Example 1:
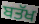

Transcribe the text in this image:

ਬਤੱਖ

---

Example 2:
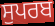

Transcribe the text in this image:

ਸੁਪਰਬ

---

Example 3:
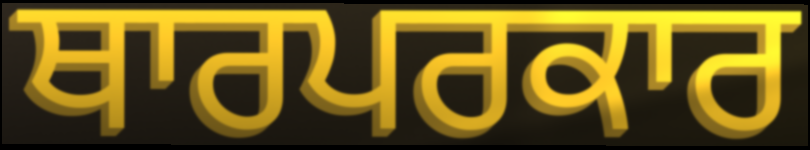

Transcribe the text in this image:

ਥਾਰਪਰਕਾਰ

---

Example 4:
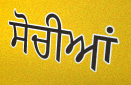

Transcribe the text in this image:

ਸੋਚੀਆਂ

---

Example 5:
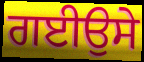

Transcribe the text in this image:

ਗਈਉਸੇ